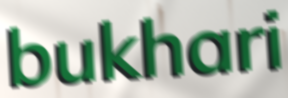
bukhari